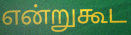
என்றுகூட